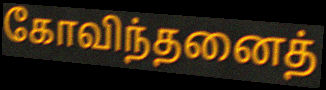
கோவிந்தனைத்